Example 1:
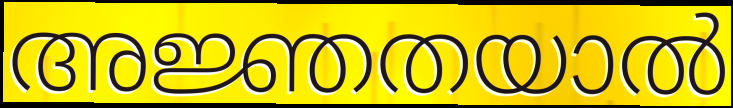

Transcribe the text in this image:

അജ്ഞതയാൽ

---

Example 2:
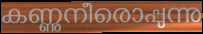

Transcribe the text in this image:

കണ്ണുനീരൊപ്പുന്നു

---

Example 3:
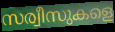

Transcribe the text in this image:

സര്വീസുകളെ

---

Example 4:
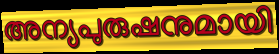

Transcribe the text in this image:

അന്യപുരുഷനുമായി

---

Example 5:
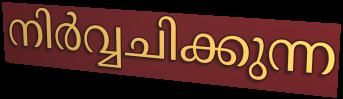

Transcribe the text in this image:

നിർവ്വചിക്കുന്ന